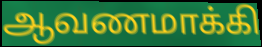
ஆவணமாக்கி